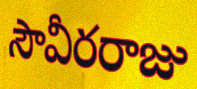
సౌవీరరాజు